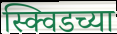
स्क्विडच्या